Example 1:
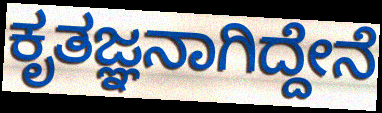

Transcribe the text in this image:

ಕೃತಜ್ಞನಾಗಿದ್ದೇನೆ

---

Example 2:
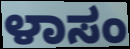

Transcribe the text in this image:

ಳಾಸಂ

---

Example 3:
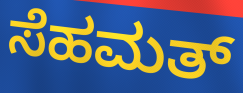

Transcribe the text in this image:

ಸೆಹಮತ್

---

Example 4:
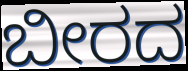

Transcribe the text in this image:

ಬೀರದ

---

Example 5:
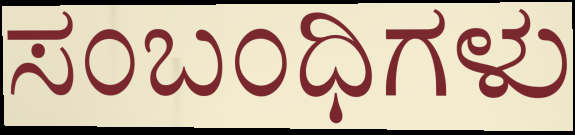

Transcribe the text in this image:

ಸಂಬಂಧಿಗಳು